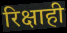
रिक्षाही